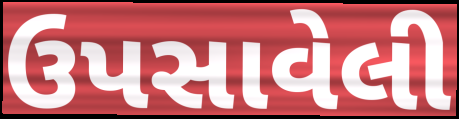
ઉપસાવેલી